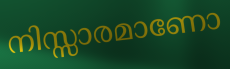
നിസ്സാരമാണോ